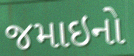
જમાઇનો